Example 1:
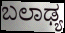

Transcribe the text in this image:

ಬಲಾಢ್ಯ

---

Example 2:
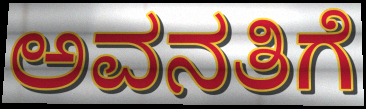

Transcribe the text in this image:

ಅವನತಿಗೆ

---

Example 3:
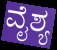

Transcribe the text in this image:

ವೈಶ್ಯ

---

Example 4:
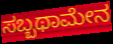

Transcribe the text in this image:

ಸಬ್ಬಥಾಮೇನ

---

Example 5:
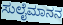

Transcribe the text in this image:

ಸುಲೈಮಾನನ